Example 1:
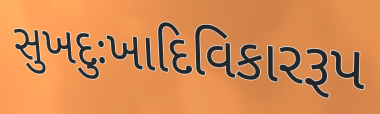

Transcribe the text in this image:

સુખદુઃખાદિવિકારરૂપ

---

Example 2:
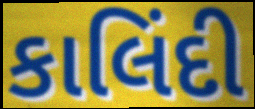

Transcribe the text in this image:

કાલિંદી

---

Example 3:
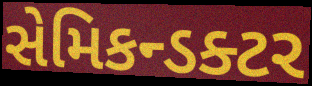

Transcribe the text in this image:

સેમિકન્ડક્ટર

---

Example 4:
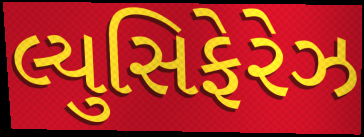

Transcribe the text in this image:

લ્યુસિફેરેઝ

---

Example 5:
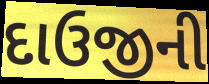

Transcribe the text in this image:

દાઉજીની